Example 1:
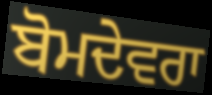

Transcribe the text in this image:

ਬੋਮਦੇਵਰਾ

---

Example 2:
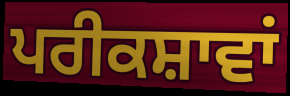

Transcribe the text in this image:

ਪਰੀਕਸ਼ਾਵਾਂ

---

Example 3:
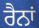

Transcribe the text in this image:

ਰੈਨਾਂ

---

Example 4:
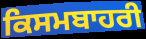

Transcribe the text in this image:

ਕਿਸਮਬਾਹਰੀ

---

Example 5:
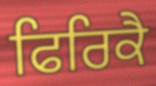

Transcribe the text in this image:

ਫਿਰਿਕੈ